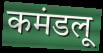
कमंडलू